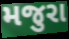
મજુરા